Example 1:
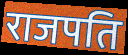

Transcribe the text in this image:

राजपति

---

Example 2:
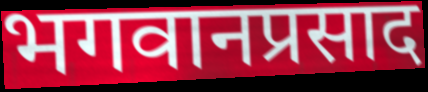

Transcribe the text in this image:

भगवानप्रसाद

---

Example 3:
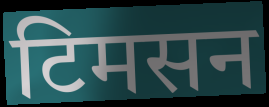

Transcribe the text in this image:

टिमसन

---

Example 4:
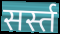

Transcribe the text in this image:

सर्स्त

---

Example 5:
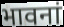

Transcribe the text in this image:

भावनां